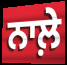
ਨਾਲ਼ੇ